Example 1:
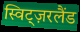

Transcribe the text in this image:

स्विट्ज़रलैंड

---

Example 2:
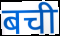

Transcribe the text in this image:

बची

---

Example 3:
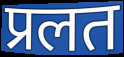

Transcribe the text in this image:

प्रलत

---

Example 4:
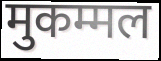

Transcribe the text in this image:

मुकम्मल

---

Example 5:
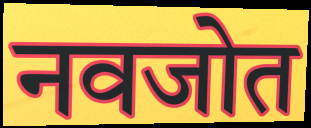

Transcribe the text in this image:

नवजोत